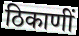
ठिकाणीं